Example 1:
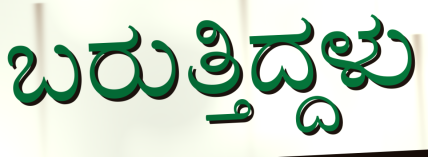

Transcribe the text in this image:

ಬರುತ್ತಿದ್ದಳು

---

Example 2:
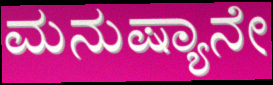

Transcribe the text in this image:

ಮನುಷ್ಯಾನೇ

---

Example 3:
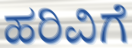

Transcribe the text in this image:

ಹರಿವಿಗೆ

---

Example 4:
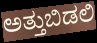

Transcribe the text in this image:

ಅತ್ತುಬಿಡಲಿ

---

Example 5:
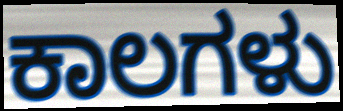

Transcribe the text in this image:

ಕಾಲಗಳು